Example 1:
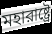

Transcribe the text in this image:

মহারাষ্ট্রে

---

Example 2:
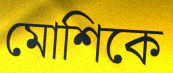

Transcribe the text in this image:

মোশিকে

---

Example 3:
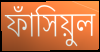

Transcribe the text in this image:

ফাঁসিয়ুল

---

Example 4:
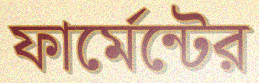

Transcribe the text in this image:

ফার্মেন্টের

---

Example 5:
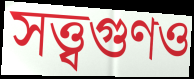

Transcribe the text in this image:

সত্ত্বগুণও